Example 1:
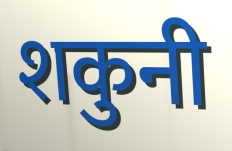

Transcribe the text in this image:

शकुनी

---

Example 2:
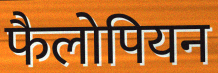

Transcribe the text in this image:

फैलोपियन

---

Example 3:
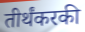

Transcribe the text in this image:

तीर्थंकरकी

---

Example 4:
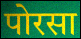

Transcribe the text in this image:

पोरसा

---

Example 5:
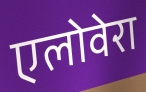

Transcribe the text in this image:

एलोवेरा